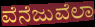
ವೆನೆಜುವೆಲಾ